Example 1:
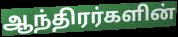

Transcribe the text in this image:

ஆந்திரர்களின்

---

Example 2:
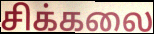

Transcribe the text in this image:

சிக்கலை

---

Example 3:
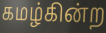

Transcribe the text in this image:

கமழ்கின்ற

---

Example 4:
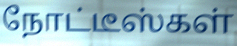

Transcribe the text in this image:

நோட்டீஸ்கள்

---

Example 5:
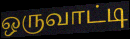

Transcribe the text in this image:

ஒருவாட்டி